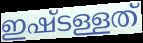
ഇഷ്ടള്ളത്